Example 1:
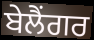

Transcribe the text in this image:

ਬੇਲੈਂਗਰ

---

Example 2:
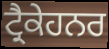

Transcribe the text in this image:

ਟ੍ਰੈਕੇਹਨਰ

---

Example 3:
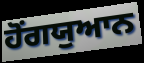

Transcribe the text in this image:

ਹੋਂਗਯੁਆਨ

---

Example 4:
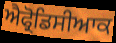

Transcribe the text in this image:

ਐਫ੍ਰੋਡਿਸੀਆਕ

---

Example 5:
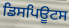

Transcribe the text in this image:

ਡਿਸਪਿਊਟਸ